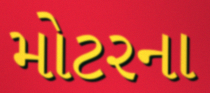
મોટરના